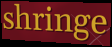
shringe